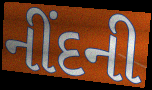
નીંદની